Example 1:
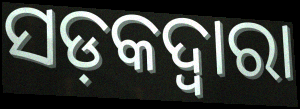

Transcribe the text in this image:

ସଡ଼କଦ୍ୱାରା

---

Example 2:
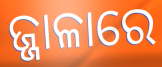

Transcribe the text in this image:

ଜ୍ଜାଳାରେ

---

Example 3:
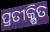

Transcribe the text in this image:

ପ୍ରତୀକ୍ଷିତ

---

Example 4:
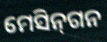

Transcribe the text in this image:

ମେସିନ୍‌ଗନ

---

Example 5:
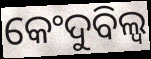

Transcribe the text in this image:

କେଂଦୁବିଲ୍ୱ